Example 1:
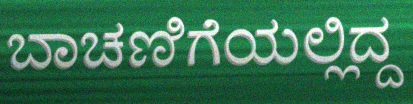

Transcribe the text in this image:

ಬಾಚಣಿಗೆಯಲ್ಲಿದ್ದ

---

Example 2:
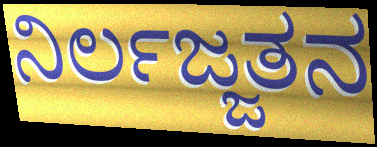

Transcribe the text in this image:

ನಿರ್ಲಜ್ಜತನ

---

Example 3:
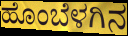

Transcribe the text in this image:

ಹೊಂಬೆಳಗಿನ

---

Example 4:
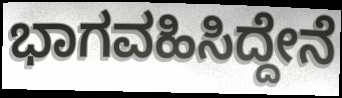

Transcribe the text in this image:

ಭಾಗವಹಿಸಿದ್ದೇನೆ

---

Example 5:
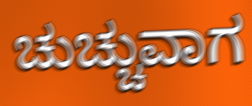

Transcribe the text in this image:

ಚುಚ್ಚುವಾಗ